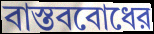
বাস্তববোধের